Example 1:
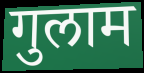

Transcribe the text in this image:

गुलाम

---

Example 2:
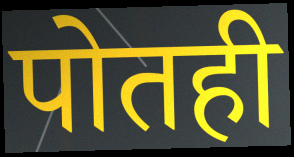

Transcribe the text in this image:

पोतही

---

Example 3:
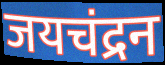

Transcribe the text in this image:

जयचंद्रन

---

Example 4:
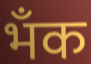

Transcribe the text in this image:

भँक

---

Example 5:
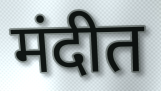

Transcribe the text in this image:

मंदीत